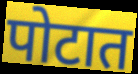
पोटात